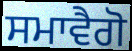
ਸਮਾਵੈਗੋ